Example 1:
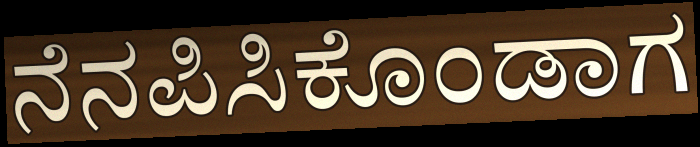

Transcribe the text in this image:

ನೆನಪಿಸಿಕೊಂಡಾಗ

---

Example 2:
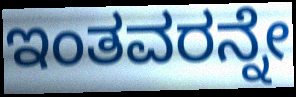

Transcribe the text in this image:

ಇಂತವರನ್ನೇ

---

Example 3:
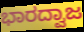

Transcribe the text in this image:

ಭಾರದ್ವಾಜ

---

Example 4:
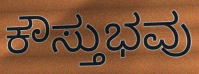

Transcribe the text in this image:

ಕೌಸ್ತುಭವು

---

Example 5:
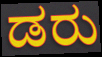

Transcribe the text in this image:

ಡರು